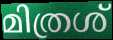
മിത്രശ്